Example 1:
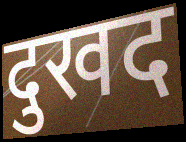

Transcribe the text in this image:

दुखद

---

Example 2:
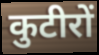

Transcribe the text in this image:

कुटीरों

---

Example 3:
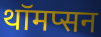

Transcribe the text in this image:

थॉमप्सन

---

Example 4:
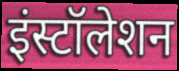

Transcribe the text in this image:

इंस्टॉलेशन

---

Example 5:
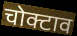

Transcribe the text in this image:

चोक्टाव